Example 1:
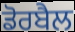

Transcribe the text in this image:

ਡੋਰਬੈਲ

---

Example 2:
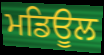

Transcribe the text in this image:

ਮਡਿਊਲ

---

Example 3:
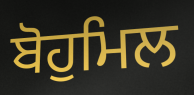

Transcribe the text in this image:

ਬੋਹੁਮਿਲ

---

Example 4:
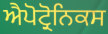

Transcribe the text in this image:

ਐਪੋਟ੍ਰੋਨਿਕਸ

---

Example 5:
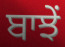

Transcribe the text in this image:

ਬਾਝੇਂ